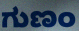
ಗುಣಂ